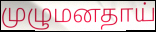
முழுமனதாய்